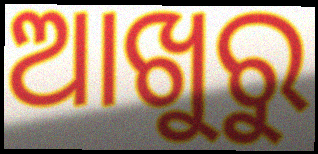
ଆଖୁରୁ